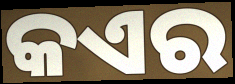
କଏର